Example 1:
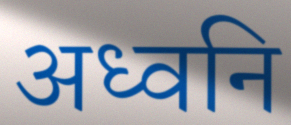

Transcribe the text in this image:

अध्वनि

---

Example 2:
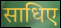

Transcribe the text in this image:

साधिए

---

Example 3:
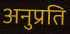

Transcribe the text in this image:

अनुप्रति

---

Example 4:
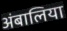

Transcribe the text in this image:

अंबालिया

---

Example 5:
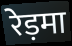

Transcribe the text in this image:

रेड़मा